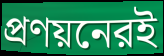
প্রণয়নেরই